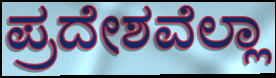
ಪ್ರದೇಶವೆಲ್ಲಾ